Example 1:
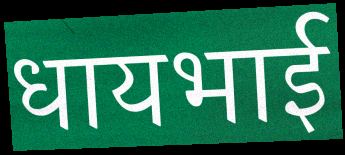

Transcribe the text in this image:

धायभाई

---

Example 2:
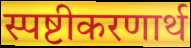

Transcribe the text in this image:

स्पष्टीकरणार्थ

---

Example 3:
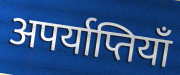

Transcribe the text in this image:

अपर्याप्तियाँ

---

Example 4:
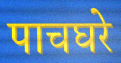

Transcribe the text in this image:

पाचघरे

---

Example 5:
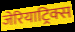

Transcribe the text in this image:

जेरियाट्रिक्स